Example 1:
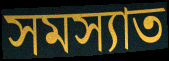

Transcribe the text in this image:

সমস্যাত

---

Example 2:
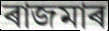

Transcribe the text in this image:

ৰাজমাৰ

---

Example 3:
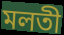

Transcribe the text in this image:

মলতী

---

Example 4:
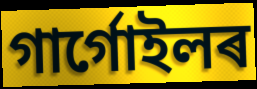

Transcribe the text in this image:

গাৰ্গোইলৰ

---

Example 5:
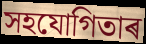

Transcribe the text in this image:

সহযোগিতাৰ